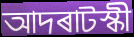
আদৰাটস্কী